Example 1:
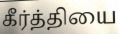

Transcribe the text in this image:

கீர்த்தியை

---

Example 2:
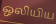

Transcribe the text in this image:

ஒலியிய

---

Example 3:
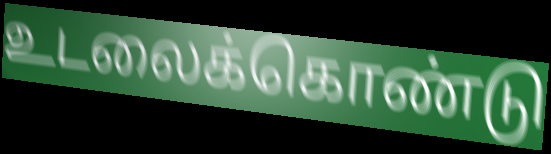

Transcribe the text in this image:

உடலைக்கொண்டு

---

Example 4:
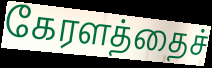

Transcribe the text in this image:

கேரளத்தைச்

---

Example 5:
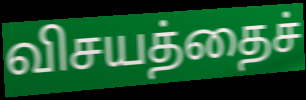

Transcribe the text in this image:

விசயத்தைச்